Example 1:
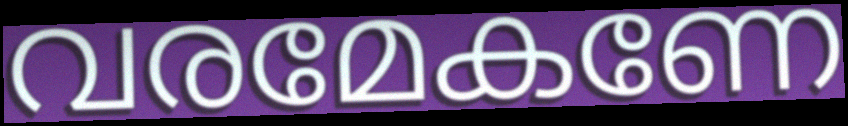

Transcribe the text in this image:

വരമേകണേ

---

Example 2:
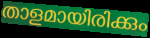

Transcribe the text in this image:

താളമായിരിക്കും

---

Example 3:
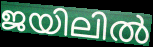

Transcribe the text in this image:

ജയിലിൽ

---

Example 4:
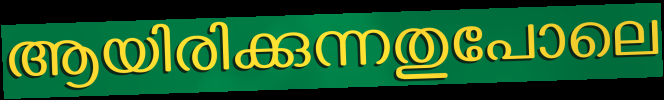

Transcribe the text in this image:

ആയിരിക്കുന്നതുപോലെ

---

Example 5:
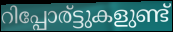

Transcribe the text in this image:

റിപ്പോര്ട്ടുകളുണ്ട്